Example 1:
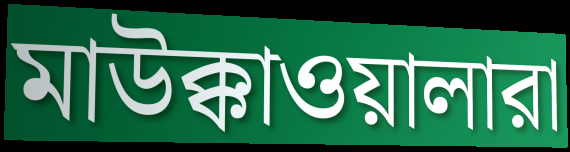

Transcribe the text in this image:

মাউক্কাওয়ালারা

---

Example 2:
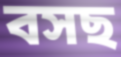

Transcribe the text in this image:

বসছ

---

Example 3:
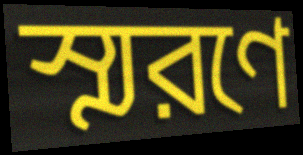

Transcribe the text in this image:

স্মরণে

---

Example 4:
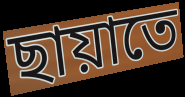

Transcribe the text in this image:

ছায়াতে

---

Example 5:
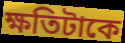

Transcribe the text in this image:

ক্ষতিটাকে